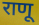
राणू